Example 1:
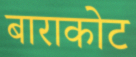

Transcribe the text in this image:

बाराकोट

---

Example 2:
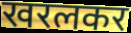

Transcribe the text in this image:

खरलकर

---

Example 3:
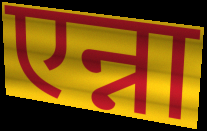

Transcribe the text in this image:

एन्ना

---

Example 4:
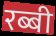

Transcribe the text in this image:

रब्बी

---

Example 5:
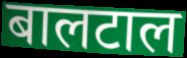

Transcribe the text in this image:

बालटाल